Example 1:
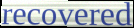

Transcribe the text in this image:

recovered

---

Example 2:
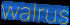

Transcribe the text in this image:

walrus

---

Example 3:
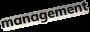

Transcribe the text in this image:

management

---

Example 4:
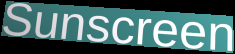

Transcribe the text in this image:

Sunscreen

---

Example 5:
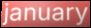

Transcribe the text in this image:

january